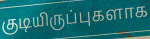
குடியிருப்புகளாக